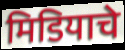
मिडियाचे